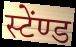
स्टेंण्ड